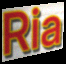
Ria